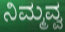
ನಿಮ್ಮವ್ವ